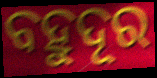
ବହୁଦୂର